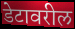
डेटावरील